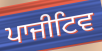
ਪਾਜੀਟਿਵ